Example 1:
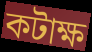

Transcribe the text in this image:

কটাক্ষ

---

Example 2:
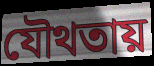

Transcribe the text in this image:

যৌথতায়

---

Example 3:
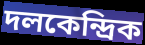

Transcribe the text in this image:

দলকেন্দ্রিক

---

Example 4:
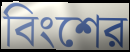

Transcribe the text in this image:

বিংশের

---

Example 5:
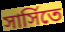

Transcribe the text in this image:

সার্সিতে